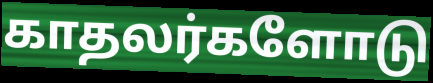
காதலர்களோடு